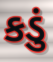
કડું